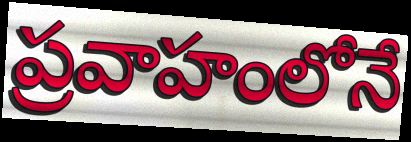
ప్రవాహంలోనే